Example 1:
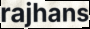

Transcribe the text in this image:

rajhans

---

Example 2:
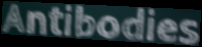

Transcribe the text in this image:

Antibodies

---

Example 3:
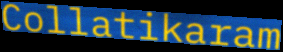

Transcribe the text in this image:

Collatikaram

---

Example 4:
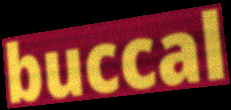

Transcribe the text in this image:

buccal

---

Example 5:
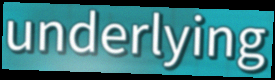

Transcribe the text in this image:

underlying